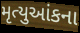
મૃત્યુઆંકના